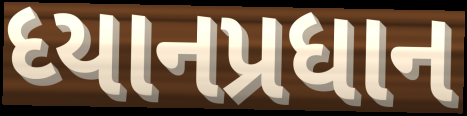
ધ્યાનપ્રધાન